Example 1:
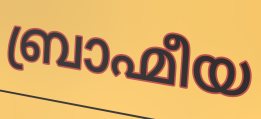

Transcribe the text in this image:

ബ്രാഹ്മീയ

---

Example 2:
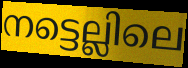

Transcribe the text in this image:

നട്ടെല്ലിലെ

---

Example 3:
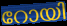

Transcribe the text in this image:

റോയി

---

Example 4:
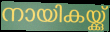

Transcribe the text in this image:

നായികയ്ക്കു്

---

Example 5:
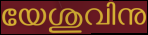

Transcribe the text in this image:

യേശുവിനു